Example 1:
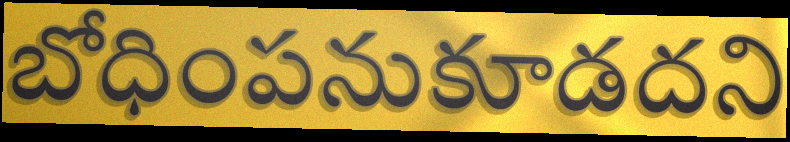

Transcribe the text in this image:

బోధింపనుకూడదని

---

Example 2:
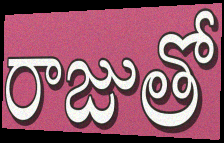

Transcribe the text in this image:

రాజుతో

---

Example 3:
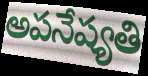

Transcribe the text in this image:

అపనేష్యతి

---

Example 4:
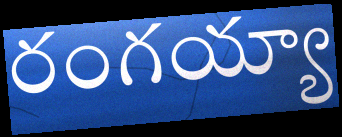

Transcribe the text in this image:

రంగయ్యా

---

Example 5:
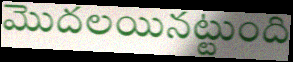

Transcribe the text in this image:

మొదలయినట్టుంది